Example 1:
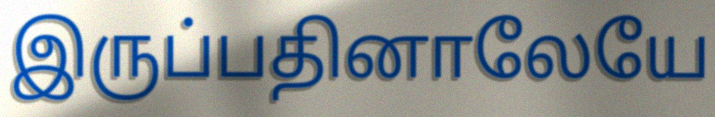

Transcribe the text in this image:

இருப்பதினாலேயே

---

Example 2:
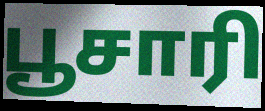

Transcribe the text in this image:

பூசாரி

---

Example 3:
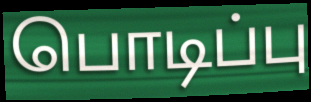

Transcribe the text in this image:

பொடிப்பு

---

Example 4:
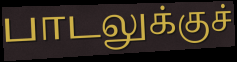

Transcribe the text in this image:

பாடலுக்குச்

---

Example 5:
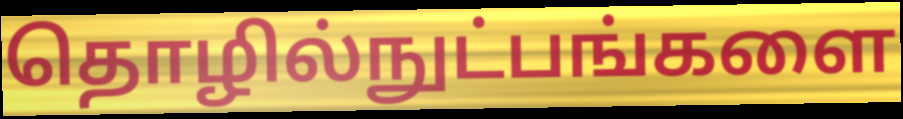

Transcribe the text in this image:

தொழில்நுட்பங்களை